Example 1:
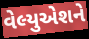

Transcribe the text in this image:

વેલ્યુએશને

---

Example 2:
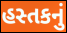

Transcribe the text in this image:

હસ્તકનું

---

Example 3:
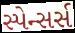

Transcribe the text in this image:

સ્પેન્સર્સ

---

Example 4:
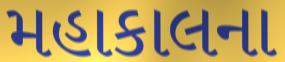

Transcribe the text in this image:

મહાકાલના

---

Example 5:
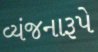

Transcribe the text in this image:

વ્યંજનારૂપે